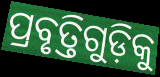
ପ୍ରବୃତ୍ତିଗୁଡ଼ିକୁ